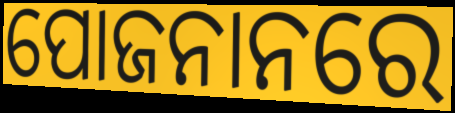
ପୋଜନାନରେ